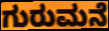
ಗುರುಮನೆ